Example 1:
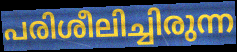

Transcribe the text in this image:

പരിശീലിച്ചിരുന്ന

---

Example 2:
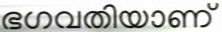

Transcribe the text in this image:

ഭഗവതിയാണ്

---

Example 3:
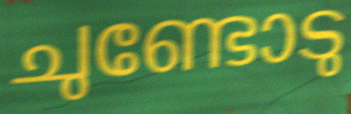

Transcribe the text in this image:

ചുണ്ടോടു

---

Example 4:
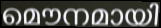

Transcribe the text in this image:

മൌനമായി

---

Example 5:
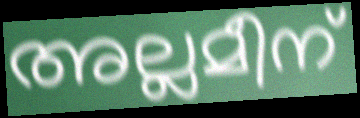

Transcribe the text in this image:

അല്ലമീന്